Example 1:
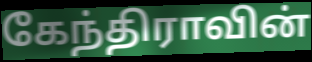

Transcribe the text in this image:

கேந்திராவின்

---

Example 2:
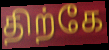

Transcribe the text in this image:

திற்கே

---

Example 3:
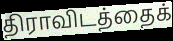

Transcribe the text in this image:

திராவிடத்தைக்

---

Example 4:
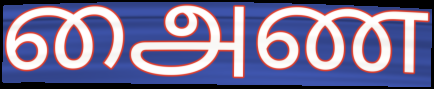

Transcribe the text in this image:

அைண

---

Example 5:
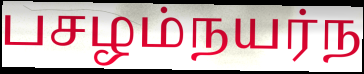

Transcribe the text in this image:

பசழம்நயர்ந